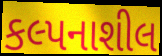
કલ્પનાશીલ